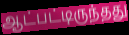
ஆட்பட்டிருந்தது